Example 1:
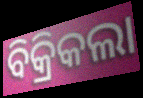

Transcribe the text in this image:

ବିକ୍ରିକଲା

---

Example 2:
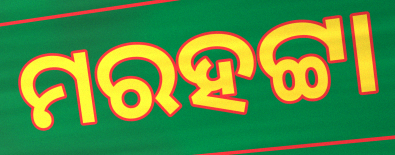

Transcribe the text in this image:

ମରହଟ୍ଟା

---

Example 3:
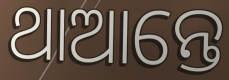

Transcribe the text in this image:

ଥାଆନ୍ତେ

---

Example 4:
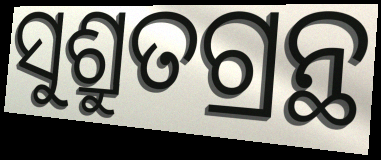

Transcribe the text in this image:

ସୁଶ୍ରୁତଗ୍ରନ୍ଥ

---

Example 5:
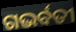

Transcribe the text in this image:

ଗଭର୍ବତୀ